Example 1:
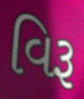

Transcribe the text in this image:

વિરૂ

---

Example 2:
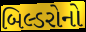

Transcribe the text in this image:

બિલ્ડરોનો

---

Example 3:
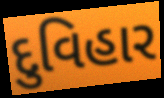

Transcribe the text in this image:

દુવિહાર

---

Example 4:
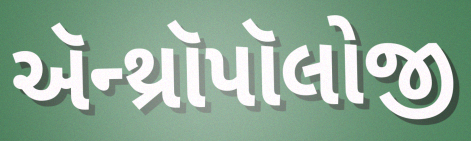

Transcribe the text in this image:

ઍન્થ્રૉપૉલોજી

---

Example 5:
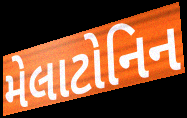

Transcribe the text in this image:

મેલાટોનિન